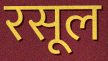
रसूल